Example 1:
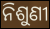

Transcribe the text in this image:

ନିଶୁଣୀ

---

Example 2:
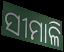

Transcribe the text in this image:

ସୀମାଳି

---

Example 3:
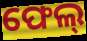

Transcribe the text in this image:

ଫେଲ୍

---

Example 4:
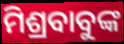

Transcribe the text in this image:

ମିଶ୍ରବାବୁଙ୍କ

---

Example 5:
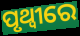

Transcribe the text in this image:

ପୃଥ୍ୱୀରେ